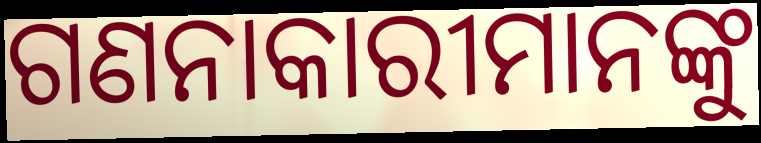
ଗଣନାକାରୀମାନଙ୍କୁ